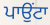
ਪਾਉੰਟਾ